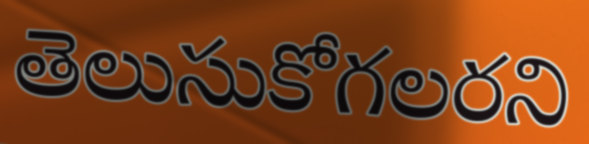
తెలుసుకోగలరని